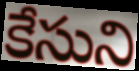
కేసుని